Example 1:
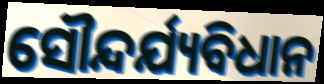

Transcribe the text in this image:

ସୌନ୍ଦର୍ଯ୍ୟବିଧାନ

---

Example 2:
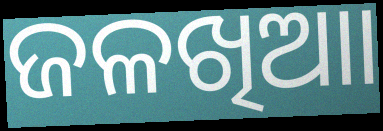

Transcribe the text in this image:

ଜଳଖିଆା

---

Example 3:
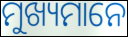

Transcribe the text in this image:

ମୁଖ୍ୟମାନେ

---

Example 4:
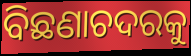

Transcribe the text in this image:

ବିଛଣାଚଦରକୁ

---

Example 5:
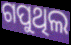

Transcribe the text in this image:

ଗପୁଥିଲ